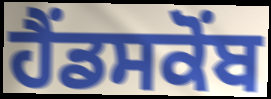
ਹੈਂਡਸਕੋਂਬ